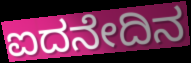
ಐದನೇದಿನ